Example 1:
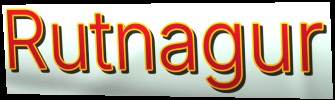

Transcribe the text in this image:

Rutnagur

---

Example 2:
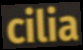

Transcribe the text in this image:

cilia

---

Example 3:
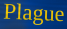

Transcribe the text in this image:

Plague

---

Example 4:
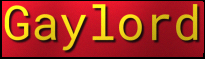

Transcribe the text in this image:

Gaylord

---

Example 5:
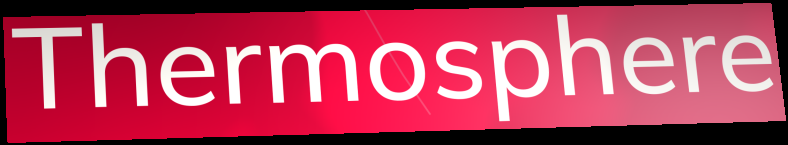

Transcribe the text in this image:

Thermosphere